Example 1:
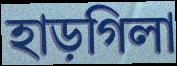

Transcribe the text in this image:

হাড়গিলা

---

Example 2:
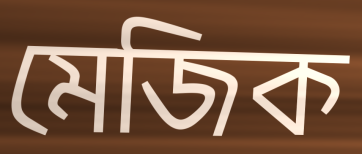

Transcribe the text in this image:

মেজিক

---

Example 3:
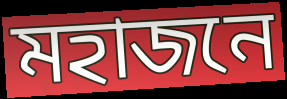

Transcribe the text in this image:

মহাজনে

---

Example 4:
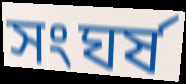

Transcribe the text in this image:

সংঘৰ্ষ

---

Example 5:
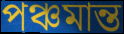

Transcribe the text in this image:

পঞ্চমান্ত